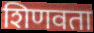
शिणवता